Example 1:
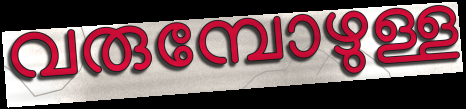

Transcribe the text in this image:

വരുമ്പോഴുള്ള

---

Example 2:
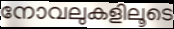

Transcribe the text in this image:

നോവലുകളിലൂടെ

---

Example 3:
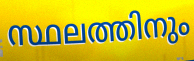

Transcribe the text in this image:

സ്ഥലത്തിനും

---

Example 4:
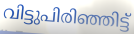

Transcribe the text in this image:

വിട്ടുപിരിഞ്ഞിട്ട്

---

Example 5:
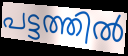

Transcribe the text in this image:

പട്ടത്തിൽ